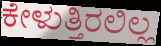
ಕೇಳುತ್ತಿರಲಿಲ್ಲ